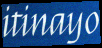
itinayo